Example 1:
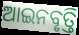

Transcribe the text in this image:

ଆଇନବୃତ୍ତି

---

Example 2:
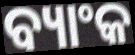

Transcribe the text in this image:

ବ୍ୟାଂକ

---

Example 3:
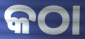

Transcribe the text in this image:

କଠା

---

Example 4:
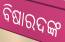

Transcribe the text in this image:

ବିଷାରଦଙ୍କ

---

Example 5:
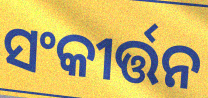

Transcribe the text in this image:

ସଂକୀର୍ତ୍ତନ